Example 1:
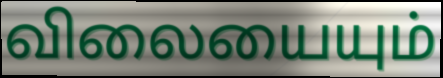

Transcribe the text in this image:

விலையையும்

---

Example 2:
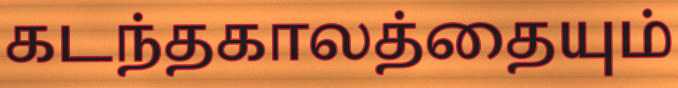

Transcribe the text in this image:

கடந்தகாலத்தையும்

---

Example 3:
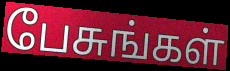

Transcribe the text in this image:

பேசுங்கள்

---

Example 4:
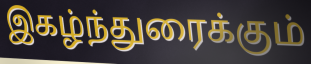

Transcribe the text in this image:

இகழ்ந்துரைக்கும்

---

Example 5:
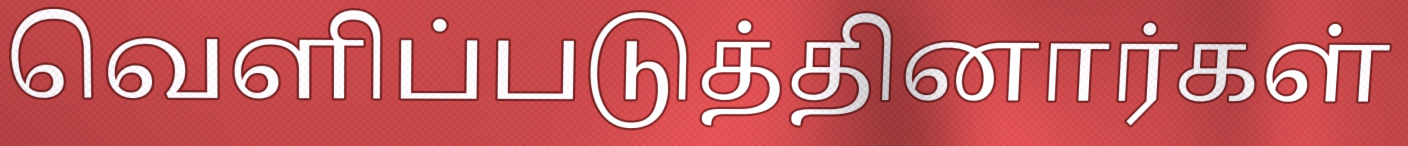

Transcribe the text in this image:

வெளிப்படுத்தினார்கள்